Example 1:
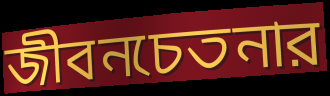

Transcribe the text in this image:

জীবনচেতনার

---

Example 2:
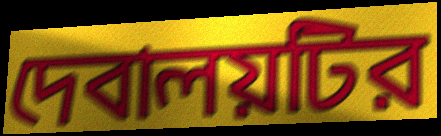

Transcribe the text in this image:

দেবালয়টির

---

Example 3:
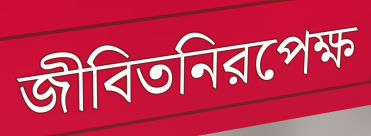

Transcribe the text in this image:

জীবিতনিরপেক্ষ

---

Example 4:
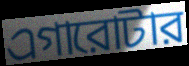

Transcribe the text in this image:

এগারোটার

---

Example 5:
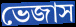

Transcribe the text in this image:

ভেজাস